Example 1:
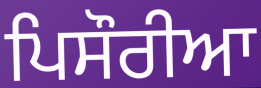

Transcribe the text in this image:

ਪਿਸੌਰੀਆ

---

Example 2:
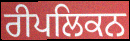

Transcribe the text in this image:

ਰੀਪਲਿਕਨ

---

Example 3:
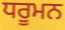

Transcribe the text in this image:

ਧਰੂਮਨ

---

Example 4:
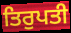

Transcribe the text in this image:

ਤਿਰੁਪਤੀ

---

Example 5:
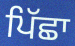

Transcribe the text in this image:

ਪਿੱਛਾ